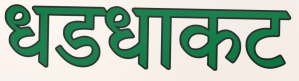
धडधाकट